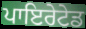
ਪਾਇਰੇਟੇਡ